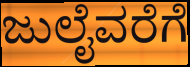
ಜುಲೈವರೆಗೆ